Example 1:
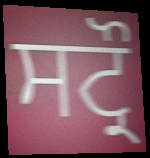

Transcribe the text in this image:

ਸਟ੍ਰੌ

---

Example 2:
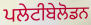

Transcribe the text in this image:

ਪਲੇਟੀਬੇਲੋਡਨ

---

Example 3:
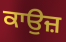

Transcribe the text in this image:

ਕਾਉਜ਼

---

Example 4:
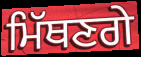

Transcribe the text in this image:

ਮਿੱਥਣਗੇ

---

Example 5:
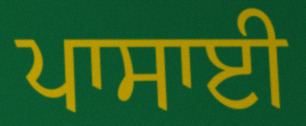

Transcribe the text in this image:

ਪਾਸਾਈ